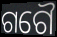
ଗଗୈ